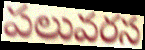
పలువరస